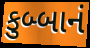
કુબ્બાનં